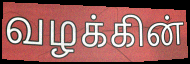
வழக்கின்